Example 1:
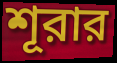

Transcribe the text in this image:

শূরার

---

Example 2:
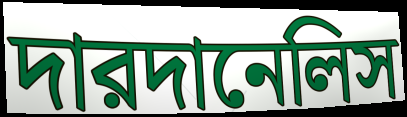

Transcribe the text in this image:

দারদানেলিস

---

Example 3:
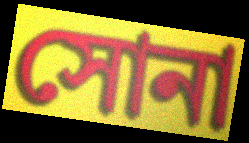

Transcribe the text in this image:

সোনা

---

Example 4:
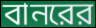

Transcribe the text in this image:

বানরের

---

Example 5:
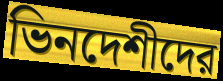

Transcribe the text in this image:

ভিনদেশীদের